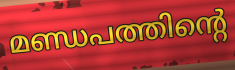
മണ്ഡപത്തിന്റെ